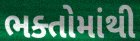
ભક્તોમાંથી